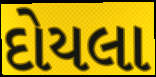
દોયલા